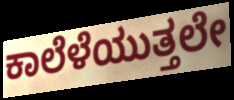
ಕಾಲೆಳೆಯುತ್ತಲೇ